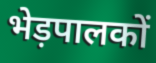
भेड़पालकों